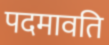
पदमावति